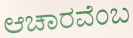
ಆಚಾರವೆಂಬ